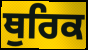
ਥੁਰਿਕ